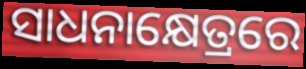
ସାଧନାକ୍ଷେତ୍ରରେ